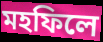
মহফিলে